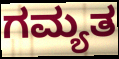
ಗಮ್ಯತ